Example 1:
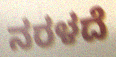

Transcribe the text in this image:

ನರಳದೆ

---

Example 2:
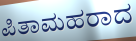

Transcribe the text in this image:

ಪಿತಾಮಹರಾದ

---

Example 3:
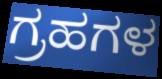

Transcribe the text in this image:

ಗ್ರಹಗಳ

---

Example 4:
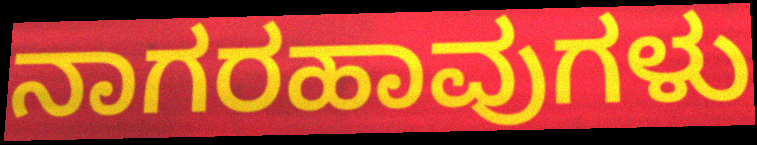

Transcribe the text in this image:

ನಾಗರಹಾವುಗಳು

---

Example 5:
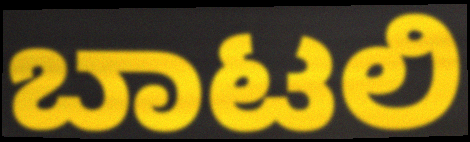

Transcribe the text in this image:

ಬಾಟಲಿ